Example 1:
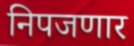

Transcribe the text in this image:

निपजणार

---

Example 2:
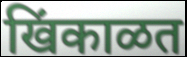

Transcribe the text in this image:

खिंकाळत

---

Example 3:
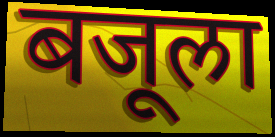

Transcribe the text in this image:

बजूला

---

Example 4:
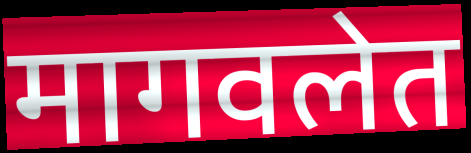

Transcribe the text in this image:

मागवलेत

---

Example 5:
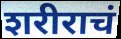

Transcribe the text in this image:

शरीराचं